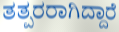
ತತ್ಪರರಾಗಿದ್ದಾರೆ